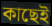
কাছেই